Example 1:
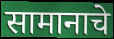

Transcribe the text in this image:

सामानाचे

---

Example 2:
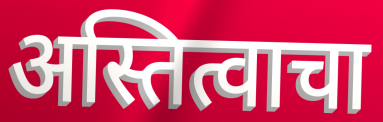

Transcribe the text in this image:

अस्तित्वाचा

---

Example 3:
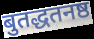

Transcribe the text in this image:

बुतद्धतनष्ठ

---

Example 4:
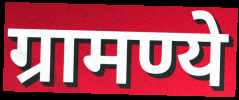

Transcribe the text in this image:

ग्रामण्ये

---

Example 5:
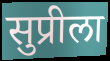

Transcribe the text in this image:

सुप्रीला